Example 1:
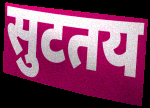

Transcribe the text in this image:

सुटतय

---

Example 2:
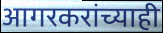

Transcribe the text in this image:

आगरकरांच्याही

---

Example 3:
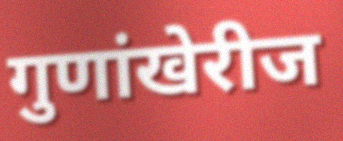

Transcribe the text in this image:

गुणांखेरीज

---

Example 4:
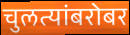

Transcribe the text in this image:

चुलत्यांबरोबर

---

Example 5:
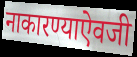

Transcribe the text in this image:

नाकारण्याऐवजी